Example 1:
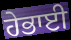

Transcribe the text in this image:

ਹੇਭਾਈ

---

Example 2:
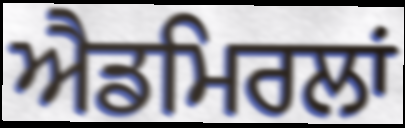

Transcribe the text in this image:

ਐਡਮਿਰਲਾਂ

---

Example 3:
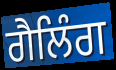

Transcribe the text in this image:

ਗੈਲਿੰਗ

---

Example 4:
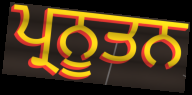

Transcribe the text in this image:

ਪ੍ਰਨੂਤਨ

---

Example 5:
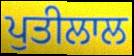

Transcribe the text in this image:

ਪੁਤੀਲਾਲ